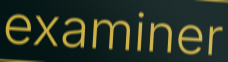
examiner